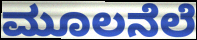
ಮೂಲನೆಲೆ